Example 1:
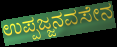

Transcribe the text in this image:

ಉಪ್ಪಜ್ಜನವಸೇನ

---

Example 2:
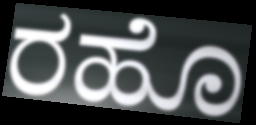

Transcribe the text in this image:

ರಹೊ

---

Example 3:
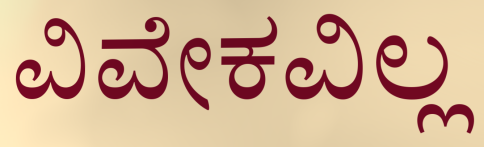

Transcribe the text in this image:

ವಿವೇಕವಿಲ್ಲ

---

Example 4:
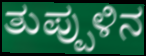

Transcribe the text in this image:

ತುಪ್ಪುಳಿನ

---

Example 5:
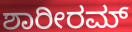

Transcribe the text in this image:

ಶಾರೀರಮ್